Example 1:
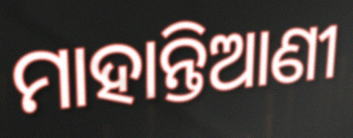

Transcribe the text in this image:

ମାହାନ୍ତିଆଣୀ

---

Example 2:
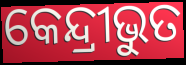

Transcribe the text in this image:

କେନ୍ଦ୍ରୀଭୁତ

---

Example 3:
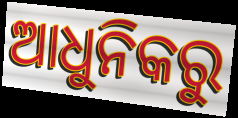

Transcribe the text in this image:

ଆଧୁନିକରୁ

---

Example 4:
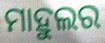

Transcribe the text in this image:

ମାହୁଲର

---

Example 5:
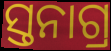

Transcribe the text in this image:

ସ୍ତନାଗ୍ର